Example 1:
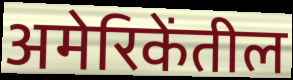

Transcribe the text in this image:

अमेरिकेंतील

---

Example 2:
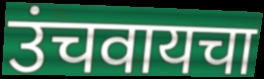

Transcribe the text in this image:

उंचवायचा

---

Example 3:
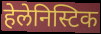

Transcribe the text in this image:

हेलेनिस्टिक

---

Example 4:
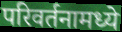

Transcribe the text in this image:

परिवर्तनामध्ये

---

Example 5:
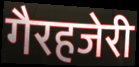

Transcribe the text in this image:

गैरहजेरी